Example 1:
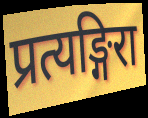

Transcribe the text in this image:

प्रत्यङ्गिरा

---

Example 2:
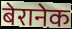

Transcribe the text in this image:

बेरानेक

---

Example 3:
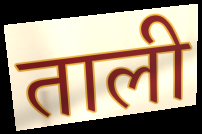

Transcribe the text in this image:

ताली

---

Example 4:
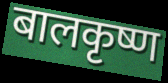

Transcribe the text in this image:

बालकृष्ण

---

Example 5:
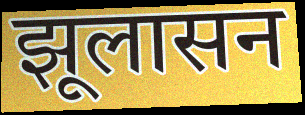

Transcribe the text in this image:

झूलासन